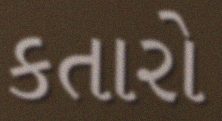
કતારો